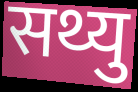
सथ्यु